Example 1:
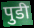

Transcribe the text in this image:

पुडी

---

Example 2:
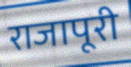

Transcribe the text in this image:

राजापूरी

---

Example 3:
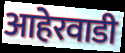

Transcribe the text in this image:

आहेरवाडी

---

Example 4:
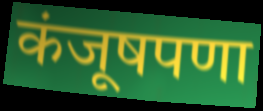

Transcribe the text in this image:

कंजूषपणा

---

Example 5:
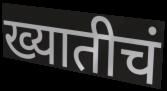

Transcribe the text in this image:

ख्यातीचं